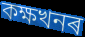
কক্ষখনৰ